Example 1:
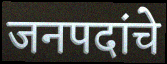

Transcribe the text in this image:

जनपदांचे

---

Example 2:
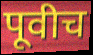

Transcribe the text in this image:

पूवीच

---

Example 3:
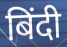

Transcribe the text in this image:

बिंदी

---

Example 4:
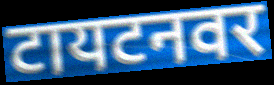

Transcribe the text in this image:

टायटनवर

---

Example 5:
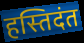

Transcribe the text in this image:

हस्तिदंत